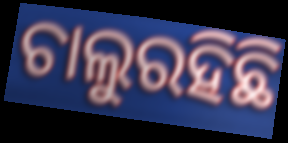
ଚାଲୁରହିଛି